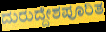
ದುರುದ್ದೇಶಪೂರಿತ